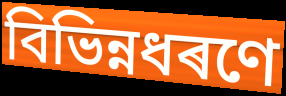
বিভিন্নধৰণে